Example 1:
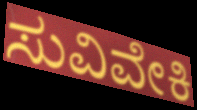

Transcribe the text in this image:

ಸುವಿವೇಕಿ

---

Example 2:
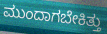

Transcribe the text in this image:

ಮುಂದಾಗಬೇಕಿತ್ತು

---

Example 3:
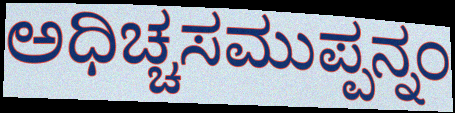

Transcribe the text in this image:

ಅಧಿಚ್ಚಸಮುಪ್ಪನ್ನಂ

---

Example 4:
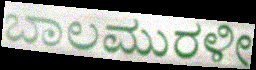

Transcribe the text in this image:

ಬಾಲಮುರಳೀ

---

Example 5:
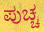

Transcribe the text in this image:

ಪುಚ್ಚ